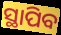
ସ୍ଥାପିବ